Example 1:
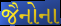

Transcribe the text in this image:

જૈનોના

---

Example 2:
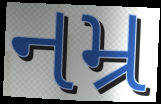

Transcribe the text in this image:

નમ્ર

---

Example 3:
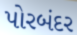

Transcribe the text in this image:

પોરબંદર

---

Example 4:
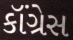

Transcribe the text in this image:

કૉંગ્રેસ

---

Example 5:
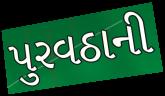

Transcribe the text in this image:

પુરવઠાની